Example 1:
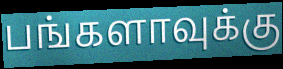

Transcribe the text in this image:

பங்களாவுக்கு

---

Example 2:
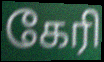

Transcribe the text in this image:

கேரி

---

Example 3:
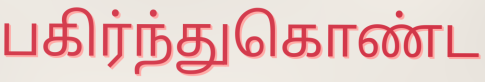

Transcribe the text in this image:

பகிர்ந்துகொண்ட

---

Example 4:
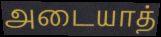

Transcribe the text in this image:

அடையாத்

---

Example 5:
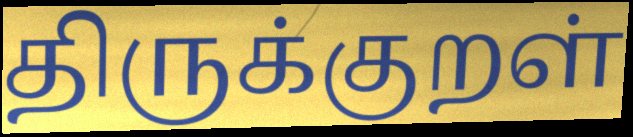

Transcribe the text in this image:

திருக்குறள்